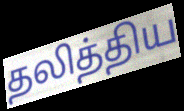
தலித்திய